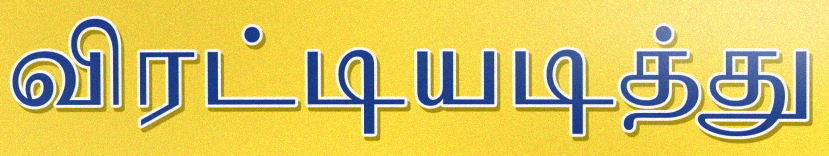
விரட்டியடித்து